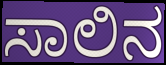
ಸಾಲಿನ